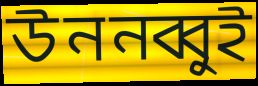
উননব্বুই